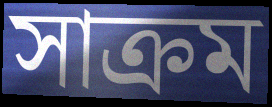
সাক্রম